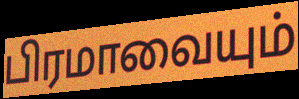
பிரமாவையும்